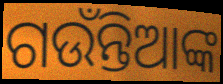
ଗଉଁନ୍ତିଆଙ୍କ